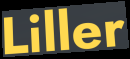
Liller